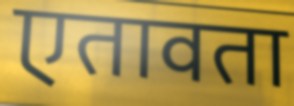
एतावता